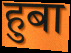
हुबा